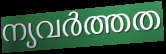
ന്യവർത്തത